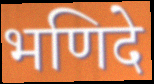
भणिदे